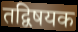
तद्विषयक